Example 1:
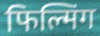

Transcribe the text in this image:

फिल्मिंग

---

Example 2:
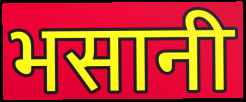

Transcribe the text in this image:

भसानी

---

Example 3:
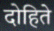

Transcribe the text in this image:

दोहिते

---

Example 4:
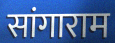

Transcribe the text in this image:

सांगाराम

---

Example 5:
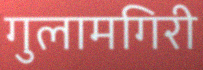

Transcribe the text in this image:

गुलामगिरी